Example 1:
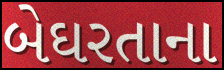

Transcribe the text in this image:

બેઘરતાના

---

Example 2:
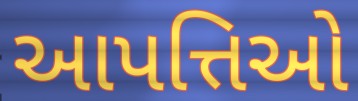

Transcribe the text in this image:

આપત્તિઓ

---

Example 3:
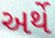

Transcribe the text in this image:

અર્થે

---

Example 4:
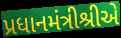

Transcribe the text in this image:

પ્રધાનમંત્રીશ્રીએ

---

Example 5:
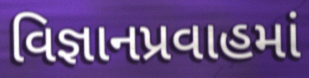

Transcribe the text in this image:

વિજ્ઞાનપ્રવાહમાં